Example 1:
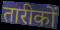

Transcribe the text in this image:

तारीकों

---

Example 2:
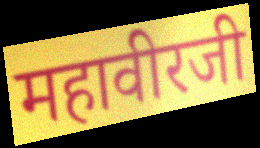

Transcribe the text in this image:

महावीरजी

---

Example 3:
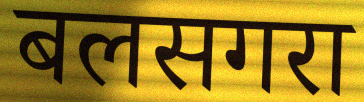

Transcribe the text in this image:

बलसगरा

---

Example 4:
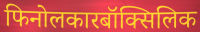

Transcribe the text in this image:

फिनोलकारबॉक्सिलिक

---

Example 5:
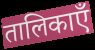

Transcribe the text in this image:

तालिकाएँ